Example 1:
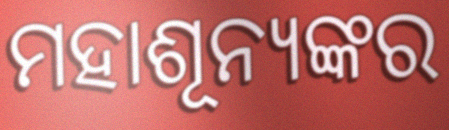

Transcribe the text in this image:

ମହାଶୂନ୍ୟଙ୍କର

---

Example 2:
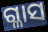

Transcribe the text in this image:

ଗ୍ଳାସ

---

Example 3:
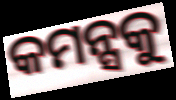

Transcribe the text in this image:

କମନ୍ସକୁ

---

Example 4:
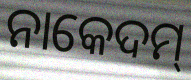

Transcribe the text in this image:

ନାକେଦମ୍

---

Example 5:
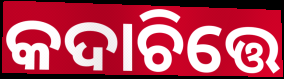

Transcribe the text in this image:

କଦାଚିତ୍ତେ